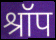
श्रॉप